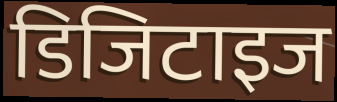
डिजिटाइज